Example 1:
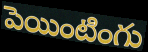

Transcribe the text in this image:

పెయింటింగు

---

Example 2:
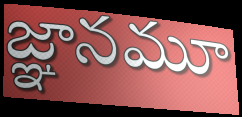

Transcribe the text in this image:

జ్ఞానమూ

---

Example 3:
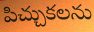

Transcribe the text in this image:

పిచ్చుకలను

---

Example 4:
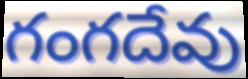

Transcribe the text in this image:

గంగదేవు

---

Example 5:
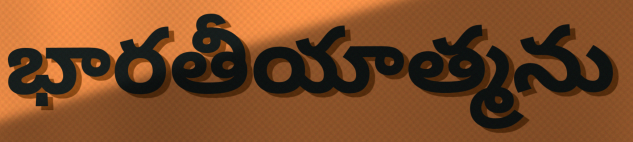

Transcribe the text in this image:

భారతీయాత్మను